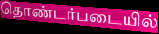
தொண்டர்படையில்